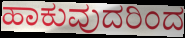
ಹಾಕುವುದರಿಂದ